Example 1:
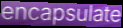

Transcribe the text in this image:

encapsulate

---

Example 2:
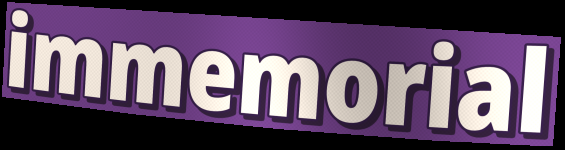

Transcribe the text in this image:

immemorial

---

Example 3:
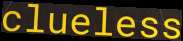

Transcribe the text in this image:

clueless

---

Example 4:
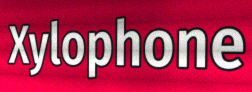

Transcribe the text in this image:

Xylophone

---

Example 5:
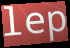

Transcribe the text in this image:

lep